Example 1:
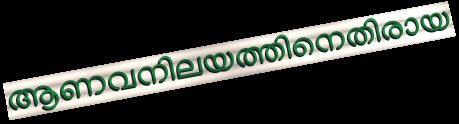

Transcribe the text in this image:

ആണവനിലയത്തിനെതിരായ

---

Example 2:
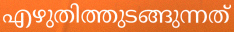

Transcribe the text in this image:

എഴുതിത്തുടങ്ങുന്നത്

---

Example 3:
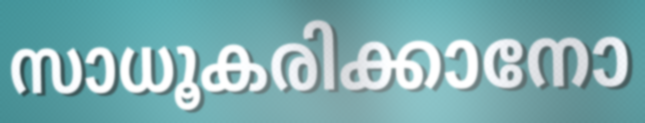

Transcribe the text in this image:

സാധൂകരിക്കാനോ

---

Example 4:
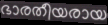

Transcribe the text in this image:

ഭാരതീയരായ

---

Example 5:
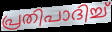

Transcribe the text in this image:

പ്രതിപാദിച്ച്